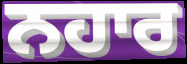
ਨਹਾਰ